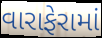
વારાફેરામાં